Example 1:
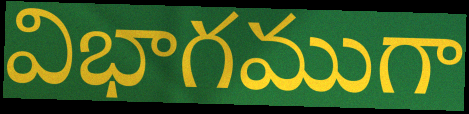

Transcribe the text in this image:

విభాగముగా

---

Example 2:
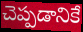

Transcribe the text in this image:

చెప్పడానికే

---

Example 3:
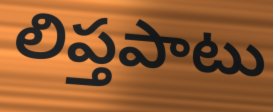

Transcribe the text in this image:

లిప్తపాటు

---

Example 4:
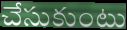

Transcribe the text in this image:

చేసుకుంటు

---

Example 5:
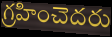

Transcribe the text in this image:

గ్రహించెదరు